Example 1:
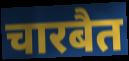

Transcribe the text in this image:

चारबैत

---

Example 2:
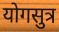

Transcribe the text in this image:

योगसुत्र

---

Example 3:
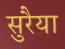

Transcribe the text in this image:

सुरैया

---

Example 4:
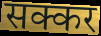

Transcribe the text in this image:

सक्कर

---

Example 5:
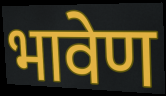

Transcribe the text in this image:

भावेण